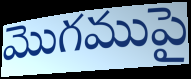
మొగముపై